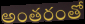
అంతరంతో